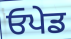
ਓਪੇਡ